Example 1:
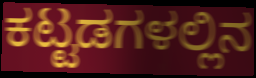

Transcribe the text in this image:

ಕಟ್ಟಡಗಳಲ್ಲಿನ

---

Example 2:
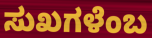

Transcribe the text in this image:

ಸುಖಗಳೆಂಬ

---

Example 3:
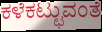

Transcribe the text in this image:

ಕಳೆಕಟ್ಟುವಂತೆ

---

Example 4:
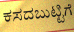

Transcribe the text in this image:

ಕಸದಬುಟ್ಟಿಗೆ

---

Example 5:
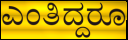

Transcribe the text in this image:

ಎಂತಿದ್ದರೂ